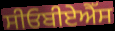
ਸੀਓਬੀਏਐੱਸ